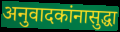
अनुवादकांनासुद्धा